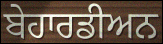
ਬੇਹਾਰਡੀਅਨ